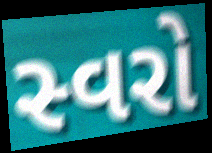
સ્વરો